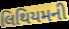
લિથિયમની